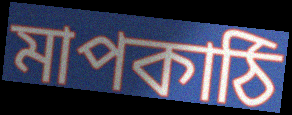
মাপকাঠি